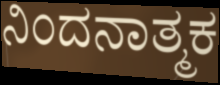
ನಿಂದನಾತ್ಮಕ